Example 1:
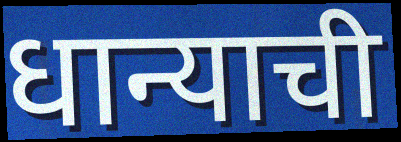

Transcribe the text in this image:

धान्याची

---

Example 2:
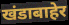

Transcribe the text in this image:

खंडाबाहेर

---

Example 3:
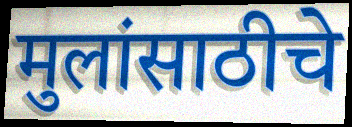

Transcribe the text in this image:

मुलांसाठीचे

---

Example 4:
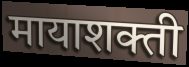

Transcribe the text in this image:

मायाशक्ती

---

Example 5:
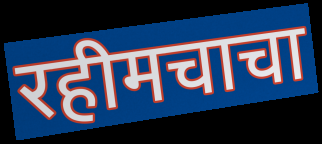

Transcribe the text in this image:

रहीमचाचा